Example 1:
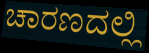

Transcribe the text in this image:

ಚಾರಣದಲ್ಲಿ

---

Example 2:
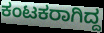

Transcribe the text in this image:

ಕಂಟಕರಾಗಿದ್ದ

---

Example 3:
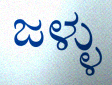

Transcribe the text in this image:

ಜಳ್ಳು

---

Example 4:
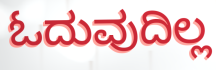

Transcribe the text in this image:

ಓದುವುದಿಲ್ಲ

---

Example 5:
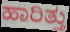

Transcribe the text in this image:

ಹಾರಿತ್ತು